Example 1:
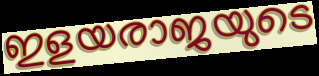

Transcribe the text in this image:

ഇളയരാജയുടെ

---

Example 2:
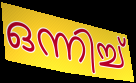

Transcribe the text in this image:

ഒന്നിച്ച്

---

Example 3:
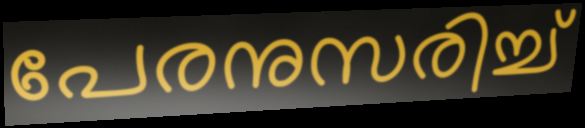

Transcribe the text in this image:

പേരനുസരിച്ച്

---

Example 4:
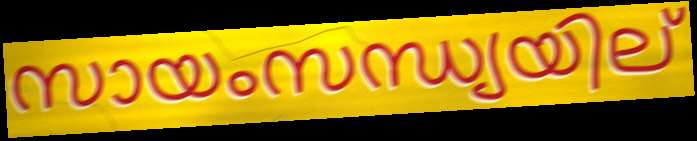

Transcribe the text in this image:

സായംസന്ധ്യയില്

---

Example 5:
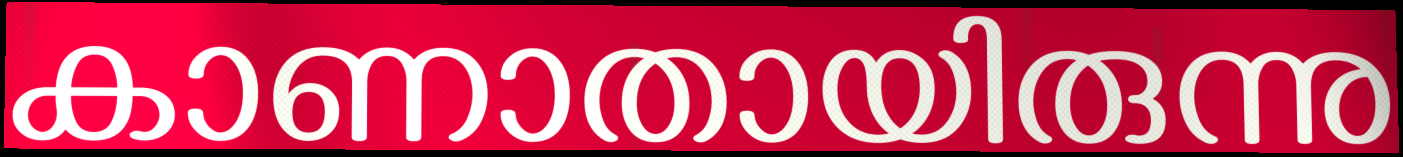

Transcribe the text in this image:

കാണാതായിരുന്നു